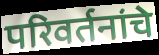
परिवर्तनांचे